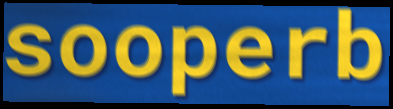
sooperb